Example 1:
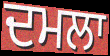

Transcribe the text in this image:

ਦਮਲਾ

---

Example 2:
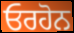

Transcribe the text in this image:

ਓਰਹੋਨ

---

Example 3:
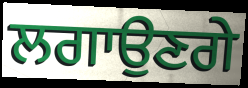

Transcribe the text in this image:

ਲਗਾਉਣਗੇ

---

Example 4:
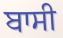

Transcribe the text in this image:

ਬਾਸੀ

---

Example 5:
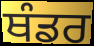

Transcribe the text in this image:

ਥੰਡਰ